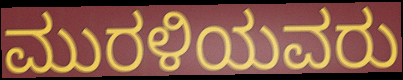
ಮುರಳಿಯವರು